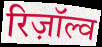
रिज़ॉल्व